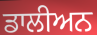
ਡਾਲੀਅਨ